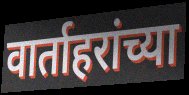
वार्ताहरांच्या